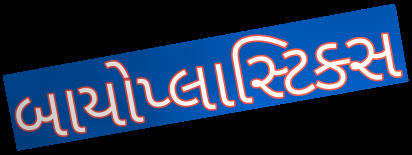
બાયોપ્લાસ્ટિક્સ